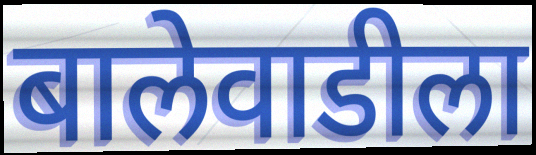
बालेवाडीला